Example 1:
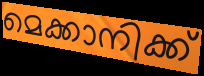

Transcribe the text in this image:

മെക്കാനിക്ക്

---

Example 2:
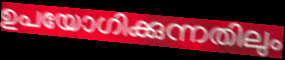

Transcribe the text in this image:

ഉപയോഗിക്കുന്നതിലും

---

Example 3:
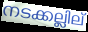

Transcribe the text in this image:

നടക്കല്ലില്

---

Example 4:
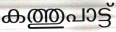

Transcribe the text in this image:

കത്തുപാട്ട്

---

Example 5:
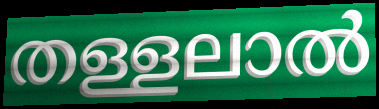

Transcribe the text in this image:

തള്ളലാൽ